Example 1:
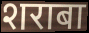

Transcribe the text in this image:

शराबा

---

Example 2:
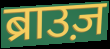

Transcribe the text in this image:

ब्राउज़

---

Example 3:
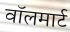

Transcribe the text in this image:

वॉलमार्ट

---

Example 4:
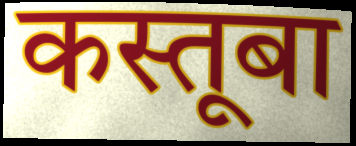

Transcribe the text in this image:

कस्तूबा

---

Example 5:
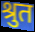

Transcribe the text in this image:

श्रुत